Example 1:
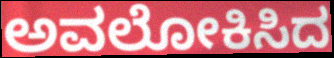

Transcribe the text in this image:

ಅವಲೋಕಿಸಿದ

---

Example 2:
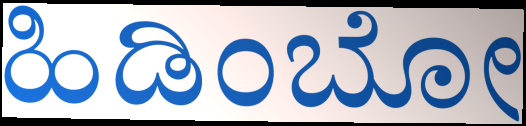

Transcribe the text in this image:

ಹಿಡಿಂಬೋ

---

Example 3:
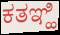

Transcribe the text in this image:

ಕತಞ್ಹಿ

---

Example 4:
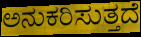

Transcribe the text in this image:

ಅನುಕರಿಸುತ್ತದೆ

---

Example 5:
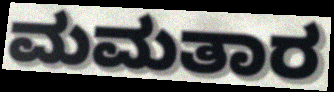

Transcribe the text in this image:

ಮಮತಾರ